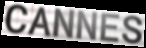
CANNES